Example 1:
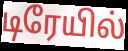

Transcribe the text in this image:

டிரேயில்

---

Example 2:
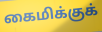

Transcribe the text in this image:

கைமிக்குக்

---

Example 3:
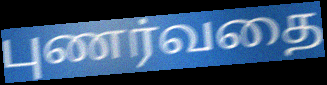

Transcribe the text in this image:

புணர்வதை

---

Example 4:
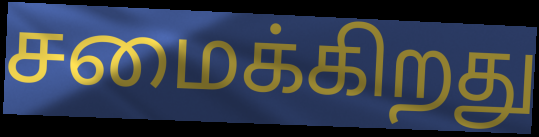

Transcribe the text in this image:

சமைக்கிறது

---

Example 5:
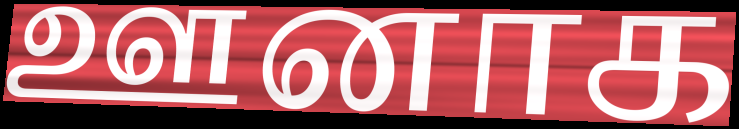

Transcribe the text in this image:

ஊனாக